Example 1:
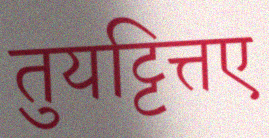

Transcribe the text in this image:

तुयट्टित्तए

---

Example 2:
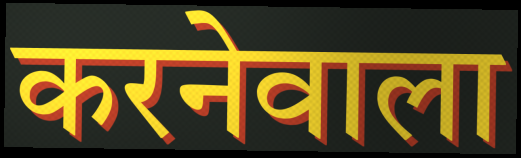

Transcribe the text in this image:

करनेवाला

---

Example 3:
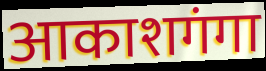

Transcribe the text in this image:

आकाशगंगा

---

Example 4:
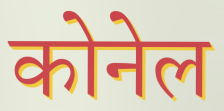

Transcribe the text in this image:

कोनेल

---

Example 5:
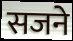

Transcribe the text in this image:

सजने